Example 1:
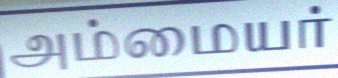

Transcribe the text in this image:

அம்மையர்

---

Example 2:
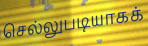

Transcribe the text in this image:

செல்லுபடியாகக்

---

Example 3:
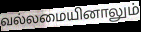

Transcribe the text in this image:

வல்லமையினாலும்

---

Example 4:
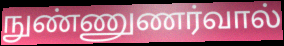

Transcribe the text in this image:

நுண்ணுணர்வால்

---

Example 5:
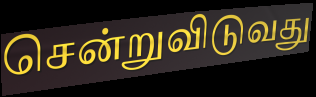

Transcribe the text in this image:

சென்றுவிடுவது